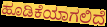
ಹೂಡಿಕೆಯಾಗಲಿದೆ